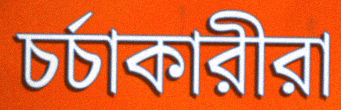
চর্চাকারীরা